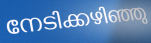
നേടിക്കഴിഞ്ഞു